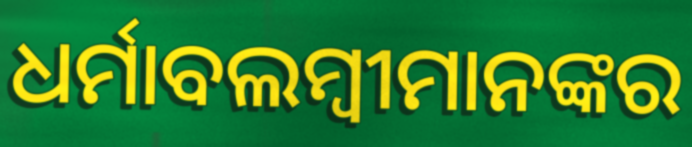
ଧର୍ମାବଲମ୍ବୀମାନଙ୍କର